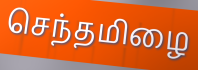
செந்தமிழை